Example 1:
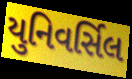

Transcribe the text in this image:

યુનિવર્સિલ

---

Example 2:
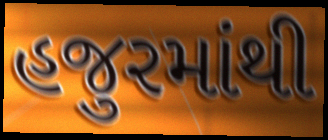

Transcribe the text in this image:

હજુરમાંથી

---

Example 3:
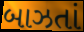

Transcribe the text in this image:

બાઝતાં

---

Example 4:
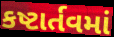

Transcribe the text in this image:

કષ્ટાર્તવમાં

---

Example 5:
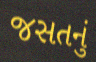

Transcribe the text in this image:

જસતનું